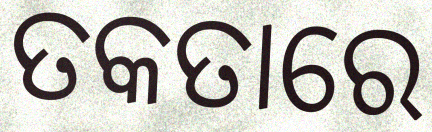
ତକତାରେ